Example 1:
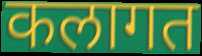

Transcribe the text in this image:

कलागत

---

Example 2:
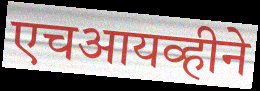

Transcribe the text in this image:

एचआयव्हीने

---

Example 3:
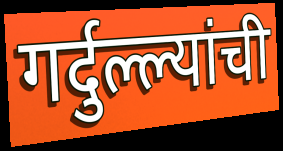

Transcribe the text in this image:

गर्दुल्ल्यांची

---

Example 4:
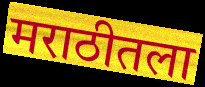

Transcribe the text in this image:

मराठीतला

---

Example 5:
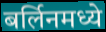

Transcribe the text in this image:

बर्लिनमध्ये